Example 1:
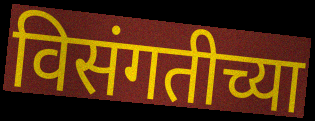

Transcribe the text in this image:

विसंगतीच्या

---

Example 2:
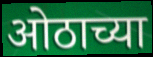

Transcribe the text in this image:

ओठाच्या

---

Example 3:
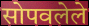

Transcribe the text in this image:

सोपवलेले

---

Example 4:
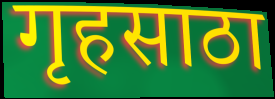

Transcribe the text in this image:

गृहसाठा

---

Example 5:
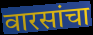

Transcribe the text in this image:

वारसांचा